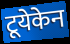
टूयेकेन